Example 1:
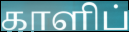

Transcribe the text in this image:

காளிப்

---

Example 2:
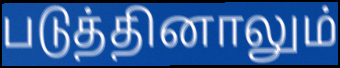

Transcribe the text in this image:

படுத்தினாலும்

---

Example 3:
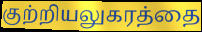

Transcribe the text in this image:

குற்றியலுகரத்தை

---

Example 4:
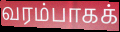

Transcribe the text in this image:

வரம்பாகக்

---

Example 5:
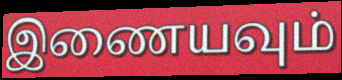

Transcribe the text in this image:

இணையவும்